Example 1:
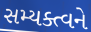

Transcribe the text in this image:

સમ્યક્ત્વને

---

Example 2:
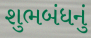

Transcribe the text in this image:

શુભબંધનું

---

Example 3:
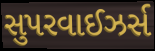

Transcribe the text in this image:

સુપરવાઈઝર્સ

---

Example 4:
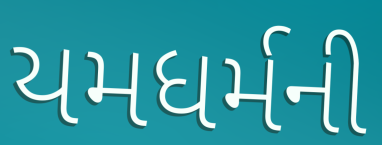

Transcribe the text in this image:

યમધર્મની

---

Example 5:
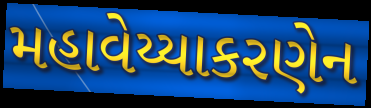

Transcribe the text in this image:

મહાવેય્યાકરણેન